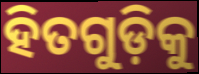
ହିତଗୁଡ଼ିକୁ